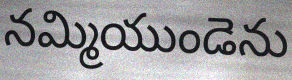
నమ్మియుండెను